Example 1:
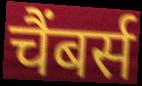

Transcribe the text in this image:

चैंबर्स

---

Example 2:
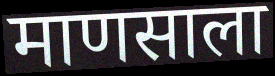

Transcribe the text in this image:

माणसाला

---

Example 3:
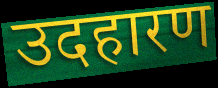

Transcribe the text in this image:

उदहारण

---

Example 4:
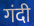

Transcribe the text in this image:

गंदी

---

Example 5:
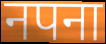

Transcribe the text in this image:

नपना